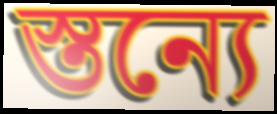
স্তন্যে